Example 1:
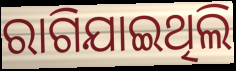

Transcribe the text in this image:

ରାଗିଯାଇଥିଲି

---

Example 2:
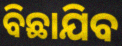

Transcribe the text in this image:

ବିଛାଯିବ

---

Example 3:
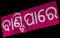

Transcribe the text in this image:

ବାଣ୍ଟିପାରେ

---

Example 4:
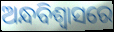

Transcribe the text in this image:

ଅନ୍ଧବିଶ୍ବାସରେ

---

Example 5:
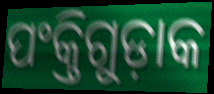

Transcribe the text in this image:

ପଂକ୍ତିଗୁଡ଼ାକ